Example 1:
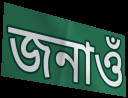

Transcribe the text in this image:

জনাওঁ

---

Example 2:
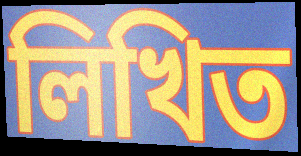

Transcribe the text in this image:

লিখিত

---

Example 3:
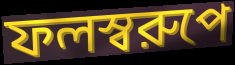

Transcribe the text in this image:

ফলস্বৰুপে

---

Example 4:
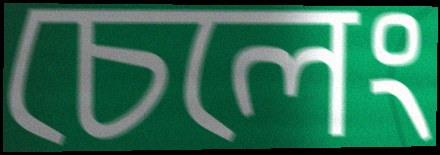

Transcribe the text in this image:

চেলেং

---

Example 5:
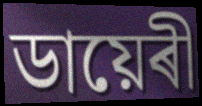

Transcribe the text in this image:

ডায়েৰী